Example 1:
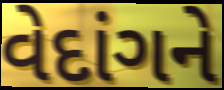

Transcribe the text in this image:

વેદાંગને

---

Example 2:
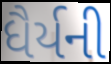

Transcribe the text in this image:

ધૈર્યની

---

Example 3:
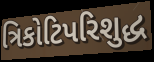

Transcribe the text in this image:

ત્રિકોટિપરિશુદ્ધ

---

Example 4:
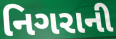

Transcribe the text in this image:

નિગરાની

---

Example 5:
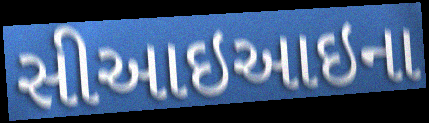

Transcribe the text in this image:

સીઆઇઆઇના